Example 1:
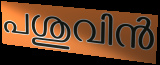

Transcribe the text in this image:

പശുവിൻ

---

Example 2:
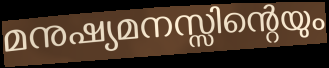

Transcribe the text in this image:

മനുഷ്യമനസ്സിന്റെയും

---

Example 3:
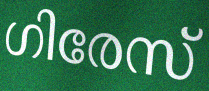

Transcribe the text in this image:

ഗിരേസ്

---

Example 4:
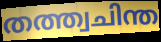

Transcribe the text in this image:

തത്ത്വചിന്ത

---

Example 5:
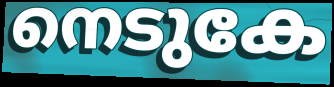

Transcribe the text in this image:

നെടുകേ